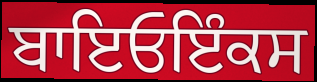
ਬਾਇਓਇੰਕਸ